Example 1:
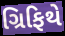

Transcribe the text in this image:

ગ્રિફિથે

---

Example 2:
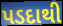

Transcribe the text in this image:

પડદાથી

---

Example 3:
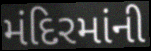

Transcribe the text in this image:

મંદિરમાંની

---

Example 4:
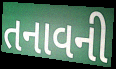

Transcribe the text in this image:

તનાવની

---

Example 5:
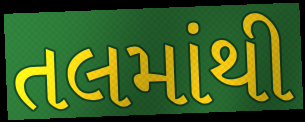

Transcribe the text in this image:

તલમાંથી